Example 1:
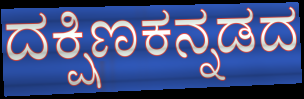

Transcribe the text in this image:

ದಕ್ಷಿಣಕನ್ನಡದ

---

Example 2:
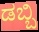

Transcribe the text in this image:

ಡಬ್ಬಿ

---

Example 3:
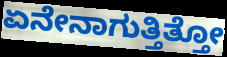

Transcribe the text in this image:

ಏನೇನಾಗುತ್ತಿತ್ತೋ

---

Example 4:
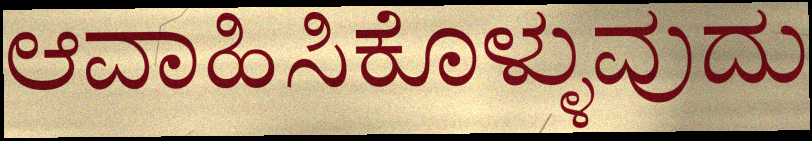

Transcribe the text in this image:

ಆವಾಹಿಸಿಕೊಳ್ಳುವುದು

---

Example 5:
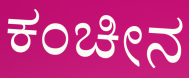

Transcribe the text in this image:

ಕಂಚೀನ